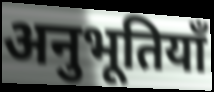
अनुभूतियाँ